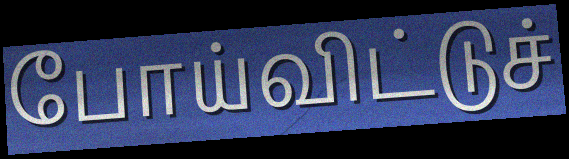
போய்விட்டுச்